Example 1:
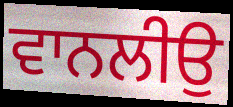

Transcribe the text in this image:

ਵਾਨਲੀਉ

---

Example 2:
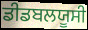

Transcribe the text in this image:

ਡੀਡਬਲਯੂਸੀ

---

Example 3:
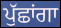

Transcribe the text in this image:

ਪੁੱਛਾਂਗਾ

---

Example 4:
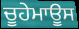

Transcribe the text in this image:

ਚੂਹੇਮਾਊਸ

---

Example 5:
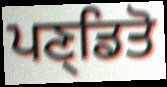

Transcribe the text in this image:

ਪਣ੍ਡਿਤੋ